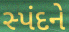
સ્પંદને